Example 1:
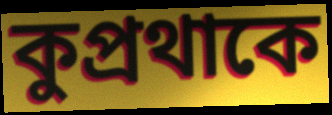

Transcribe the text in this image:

কুপ্রথাকে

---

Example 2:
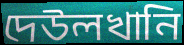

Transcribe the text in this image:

দেউলখানি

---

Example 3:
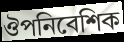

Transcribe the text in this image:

ঔপনিবেশিক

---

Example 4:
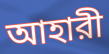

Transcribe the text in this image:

আহারী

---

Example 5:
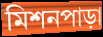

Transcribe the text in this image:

মিশনপাড়া